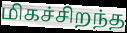
மிகச்சிறந்த